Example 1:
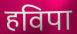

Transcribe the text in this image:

हविपा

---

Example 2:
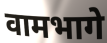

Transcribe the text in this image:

वामभागे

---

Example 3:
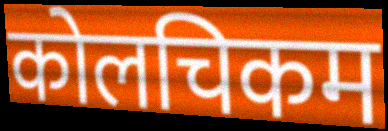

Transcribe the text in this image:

कोलचिकम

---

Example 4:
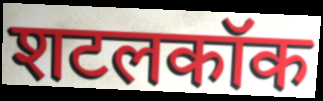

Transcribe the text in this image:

शटलकॉक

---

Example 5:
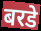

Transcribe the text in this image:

बरडे